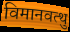
विमानवत्थु